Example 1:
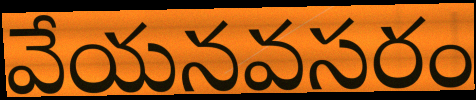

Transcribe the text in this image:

వేయనవసరం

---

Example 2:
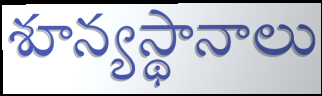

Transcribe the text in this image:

శూన్యస్థానాలు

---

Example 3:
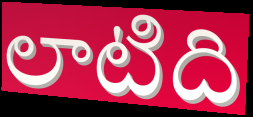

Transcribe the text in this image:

లాటిది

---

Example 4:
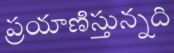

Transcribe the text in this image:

ప్రయాణిస్తున్నది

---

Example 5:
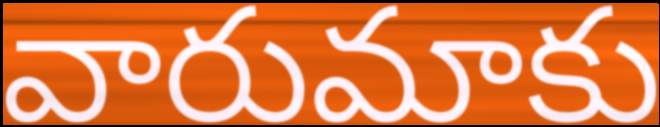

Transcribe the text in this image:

వారుమాకు